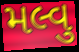
મલ્વુ